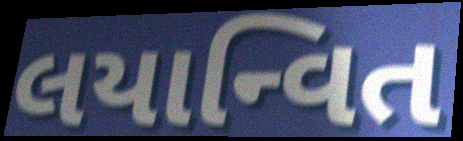
લયાન્વિત